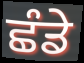
ਛੰਡੇ